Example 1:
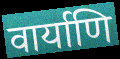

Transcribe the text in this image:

वार्याणि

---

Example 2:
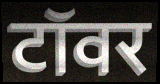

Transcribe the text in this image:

टॉवर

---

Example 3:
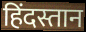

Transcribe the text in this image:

हिंदस्तान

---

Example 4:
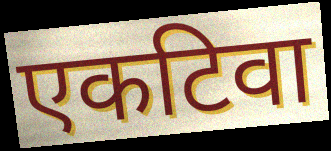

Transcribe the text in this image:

एकटिवा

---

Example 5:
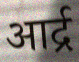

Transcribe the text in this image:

आर्द्र